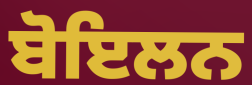
ਬੋਇਲਨ